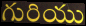
గురియు